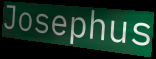
Josephus